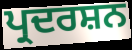
ਪ੍ਰਦਰਸ਼ਨ